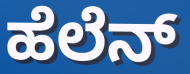
ಹೆಲೆನ್